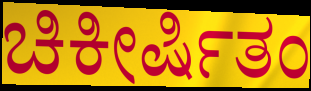
ಚಿಕೀರ್ಷಿತಂ